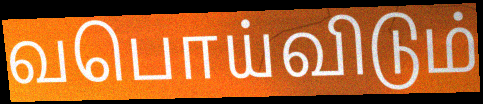
வபொய்விடும்